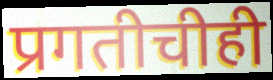
प्रगतीचीही